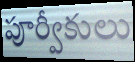
పూర్వీకులు